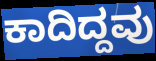
ಕಾದಿದ್ದವು